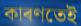
কাৰণতেই